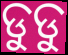
ଡୁଡୁ